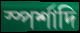
স্পর্শাদি